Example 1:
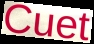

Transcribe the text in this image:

Cuet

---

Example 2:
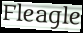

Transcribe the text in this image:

Fleagle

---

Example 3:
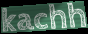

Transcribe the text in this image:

kachh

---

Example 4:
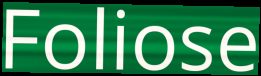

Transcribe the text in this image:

Foliose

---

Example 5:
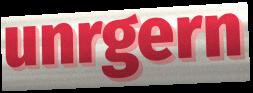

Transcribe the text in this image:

unrgern